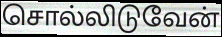
சொல்லிடுவேன்